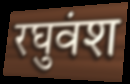
रघुवंश